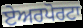
ਏਅਰਪੋਰਟਾ